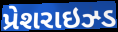
પ્રેશરાઇઝ્ડ